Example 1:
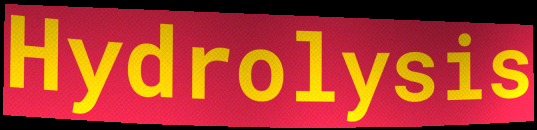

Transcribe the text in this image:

Hydrolysis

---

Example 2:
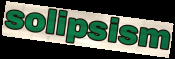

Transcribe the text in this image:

solipsism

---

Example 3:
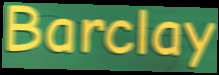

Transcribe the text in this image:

Barclay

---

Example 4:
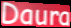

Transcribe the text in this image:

Daura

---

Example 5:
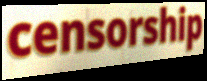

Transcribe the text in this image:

censorship